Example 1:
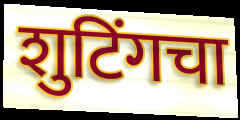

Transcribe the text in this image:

शुटिंगचा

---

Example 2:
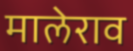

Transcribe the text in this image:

मालेराव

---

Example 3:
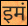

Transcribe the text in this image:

इमं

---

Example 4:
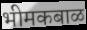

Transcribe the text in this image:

भीमकबाळ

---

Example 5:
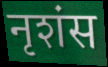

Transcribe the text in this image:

नृशंस